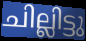
ചില്ലിട്ടു